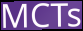
MCTs